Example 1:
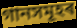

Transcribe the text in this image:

গানসমূহৰ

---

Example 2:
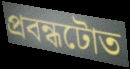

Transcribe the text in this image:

প্ৰবন্ধটোত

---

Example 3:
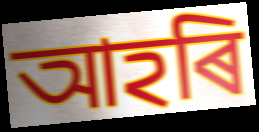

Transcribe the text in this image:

আহৰি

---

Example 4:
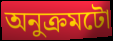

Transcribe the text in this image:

অনুক্ৰমটো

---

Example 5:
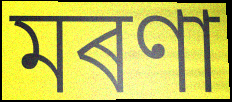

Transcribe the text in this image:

মৰণা